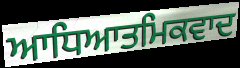
ਆਧਿਆਤਮਿਕਵਾਦ